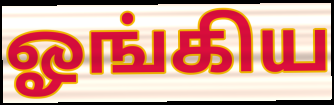
ஓங்கிய